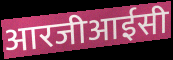
आरजीआईसी